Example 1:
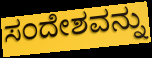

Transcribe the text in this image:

ಸಂದೇಶವನ್ನು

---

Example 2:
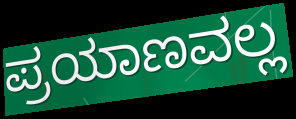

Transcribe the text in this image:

ಪ್ರಯಾಣವಲ್ಲ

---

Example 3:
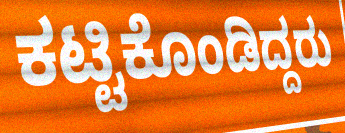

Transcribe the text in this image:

ಕಟ್ಟಿಕೊಂಡಿದ್ದರು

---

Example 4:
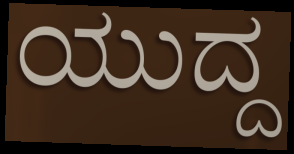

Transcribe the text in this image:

ಯುದ್ದ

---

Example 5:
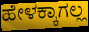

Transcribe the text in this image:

ಹೇಳಕ್ಕಾಗಲ್ಲ